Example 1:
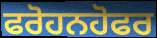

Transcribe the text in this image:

ਫਰੋਹਨਹੋਫਰ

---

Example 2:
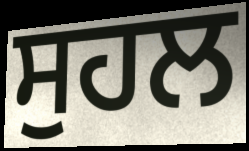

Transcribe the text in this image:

ਸੁਹਲ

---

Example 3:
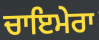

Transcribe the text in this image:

ਚਾਇਮੇਰਾ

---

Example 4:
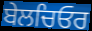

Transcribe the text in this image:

ਬੇਲਚਿਓਰ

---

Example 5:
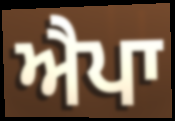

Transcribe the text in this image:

ਐਪਾ